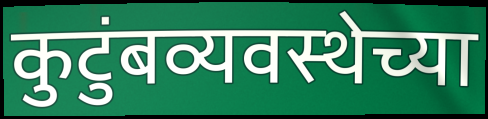
कुटुंबव्यवस्थेच्या